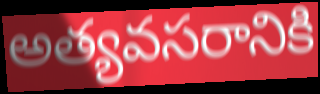
అత్యవసరానికి